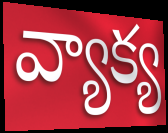
వ్యాక్య